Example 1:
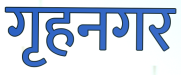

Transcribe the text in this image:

गृहनगर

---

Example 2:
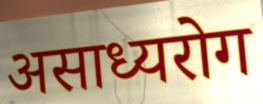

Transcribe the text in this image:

असाध्यरोग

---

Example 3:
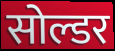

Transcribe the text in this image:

सोल्डर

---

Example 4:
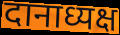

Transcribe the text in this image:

दानाध्यक्ष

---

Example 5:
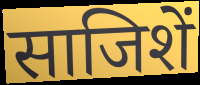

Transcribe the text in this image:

साजिशें